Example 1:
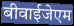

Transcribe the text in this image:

बीवाईजेएम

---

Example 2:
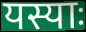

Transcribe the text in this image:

यस्याः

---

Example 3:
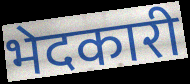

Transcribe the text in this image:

भेदकारी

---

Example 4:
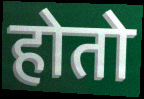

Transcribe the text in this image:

होतो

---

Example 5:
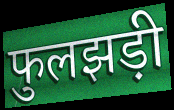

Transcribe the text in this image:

फुलझड़ी